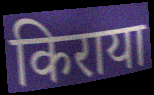
किराया